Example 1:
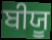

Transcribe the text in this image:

ਬੀਯੂ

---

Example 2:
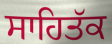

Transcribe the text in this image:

ਸਾਹਿਤੱਕ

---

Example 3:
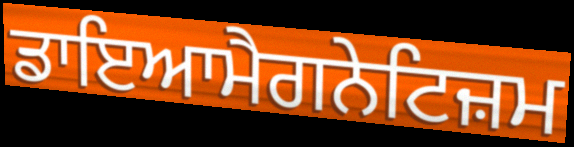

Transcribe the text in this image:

ਡਾਇਆਮੈਗਨੇਟਿਜ਼ਮ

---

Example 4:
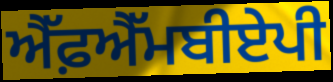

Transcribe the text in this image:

ਐੱਫ਼ਐੱਮਬੀਏਪੀ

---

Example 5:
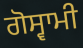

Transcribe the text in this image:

ਗੋਸ੍ਵਾਮੀ